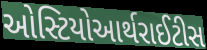
ઓસ્ટિયોઆર્થરાઈટીસ